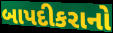
બાપદીકરાનો